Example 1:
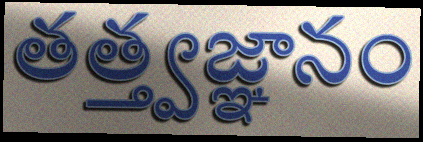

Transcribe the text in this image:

తత్త్వజ్ఞానం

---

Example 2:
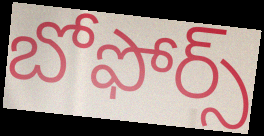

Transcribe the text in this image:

బోఫోర్స్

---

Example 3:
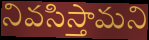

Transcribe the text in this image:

నివసిస్తామని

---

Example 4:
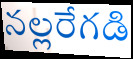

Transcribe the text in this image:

నల్లరేగడి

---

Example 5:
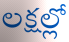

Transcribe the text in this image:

లక్షల్లో